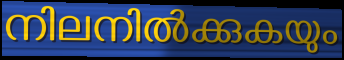
നിലനിൽക്കുകയും